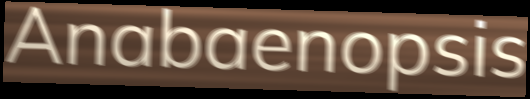
Anabaenopsis